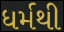
ધર્મથી